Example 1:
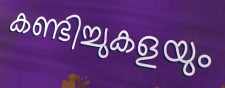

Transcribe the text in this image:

കണ്ടിച്ചുകളയും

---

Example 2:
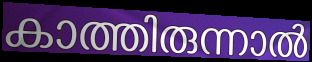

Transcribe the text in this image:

കാത്തിരുന്നാൽ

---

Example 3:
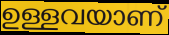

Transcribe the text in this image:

ഉള്ളവയാണ്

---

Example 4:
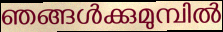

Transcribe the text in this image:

ഞങ്ങൾക്കുമുമ്പിൽ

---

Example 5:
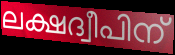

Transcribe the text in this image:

ലക്ഷദ്വീപിന്